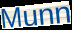
Munn